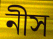
নীস